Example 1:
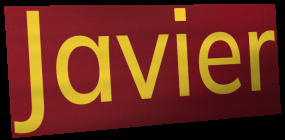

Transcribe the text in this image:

Javier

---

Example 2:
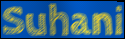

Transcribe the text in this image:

Suhani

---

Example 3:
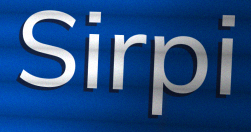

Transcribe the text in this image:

Sirpi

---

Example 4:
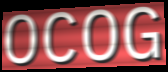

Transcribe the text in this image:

OCOG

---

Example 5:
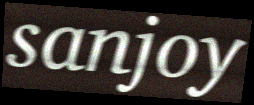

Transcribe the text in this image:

sanjoy